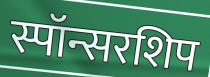
स्पॉन्सरशिप